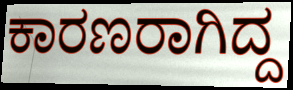
ಕಾರಣರಾಗಿದ್ದ